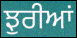
ਝੁਰੀਆਂ